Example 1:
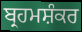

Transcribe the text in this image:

ਬ੍ਰਹਮਸ਼ੰਕਰ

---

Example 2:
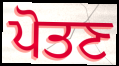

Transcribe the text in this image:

ਪੋਤਣ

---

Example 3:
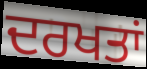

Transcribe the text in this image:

ਦਰਖਤਾਂ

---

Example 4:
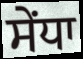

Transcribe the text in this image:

ਸੇਂਧਾ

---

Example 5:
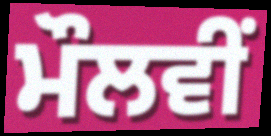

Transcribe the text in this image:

ਮੌਲਵੀਂ